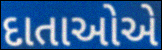
દાતાઓએ